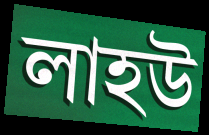
লাহউ